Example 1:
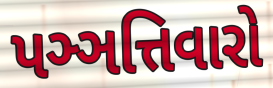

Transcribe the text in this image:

પઞ્ઞત્તિવારો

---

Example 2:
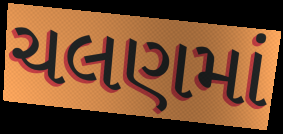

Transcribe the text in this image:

ચલણમાં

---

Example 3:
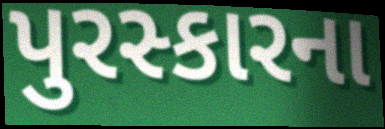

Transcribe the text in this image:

પુરસ્કારના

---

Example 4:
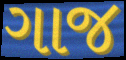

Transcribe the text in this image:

ગાજ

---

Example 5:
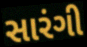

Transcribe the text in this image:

સારંગી